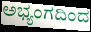
ಅಭ್ಯಂಗದಿಂದ